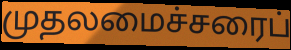
முதலமைச்சரைப்